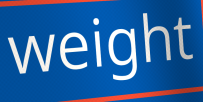
weight